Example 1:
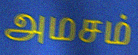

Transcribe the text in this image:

அமசம்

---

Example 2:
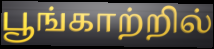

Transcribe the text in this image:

பூங்காற்றில்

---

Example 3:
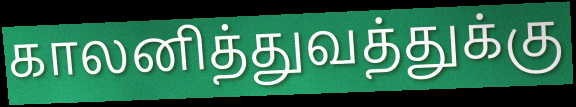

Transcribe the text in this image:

காலனித்துவத்துக்கு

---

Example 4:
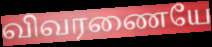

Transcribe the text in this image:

விவரணையே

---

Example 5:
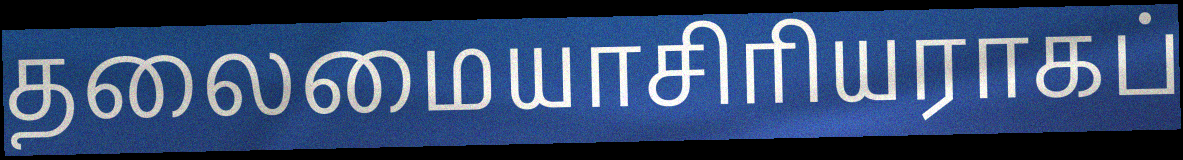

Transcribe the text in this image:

தலைமையாசிரியராகப்